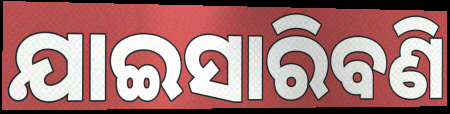
ଯାଇସାରିବଣି